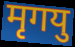
मृगयु